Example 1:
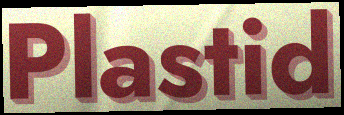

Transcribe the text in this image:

Plastid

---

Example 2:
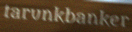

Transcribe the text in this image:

tarunkbanker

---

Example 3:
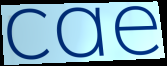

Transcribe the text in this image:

cae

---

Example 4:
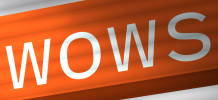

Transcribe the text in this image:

wows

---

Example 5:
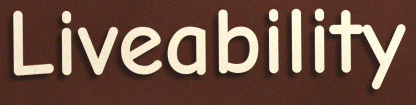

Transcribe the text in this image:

Liveability